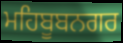
ਮਹਿਬੂਬਨਗਰ